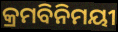
କ୍ରମବିନିମୟୀ